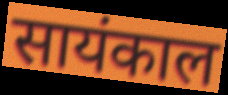
सायंकाल